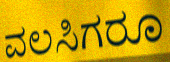
ವಲಸಿಗರೂ